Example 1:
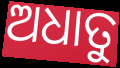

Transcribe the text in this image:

ଅଧାତୁ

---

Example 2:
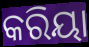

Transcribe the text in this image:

କରିୟା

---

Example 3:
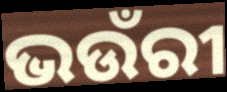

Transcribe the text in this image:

ଭଉଁରୀ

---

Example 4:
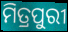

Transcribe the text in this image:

ମିତ୍ରପୁରୀ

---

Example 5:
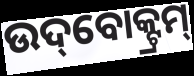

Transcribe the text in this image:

ଉଦ୍‌ବୋକ୍ଟ୍ରମ୍